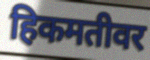
हिकमतीवर